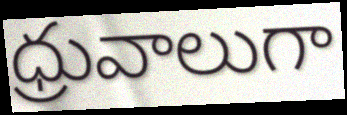
ధ్రువాలుగా